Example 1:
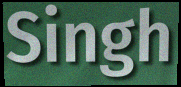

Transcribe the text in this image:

Singh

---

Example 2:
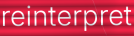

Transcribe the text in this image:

reinterpret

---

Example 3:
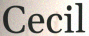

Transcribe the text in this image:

Cecil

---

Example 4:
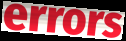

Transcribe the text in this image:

errors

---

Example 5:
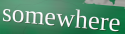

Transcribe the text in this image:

somewhere